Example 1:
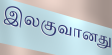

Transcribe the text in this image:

இலகுவானது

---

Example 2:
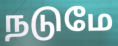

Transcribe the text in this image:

நடுமே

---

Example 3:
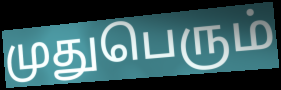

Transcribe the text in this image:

முதுபெரும்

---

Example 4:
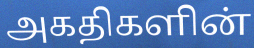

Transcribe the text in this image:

அகதிகளின்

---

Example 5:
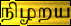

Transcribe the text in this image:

நிழறய